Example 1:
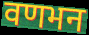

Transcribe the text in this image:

वणभन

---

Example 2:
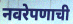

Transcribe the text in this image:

नवरेपणाची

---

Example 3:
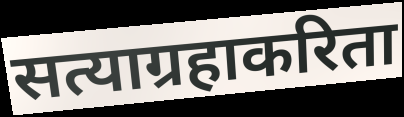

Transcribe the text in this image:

सत्याग्रहाकरिता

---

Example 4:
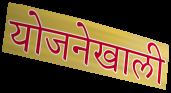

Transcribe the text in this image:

योजनेखाली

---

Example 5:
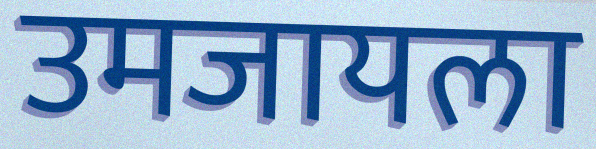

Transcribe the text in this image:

उमजायला